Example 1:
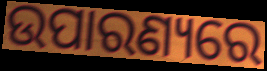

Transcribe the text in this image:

ଉପାରଣ୍ୟରେ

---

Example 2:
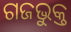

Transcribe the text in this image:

ଗଜଭୁକ୍ତ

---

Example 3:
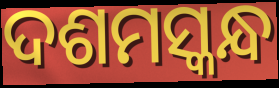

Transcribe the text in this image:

ଦଶମସ୍କନ୍ଧ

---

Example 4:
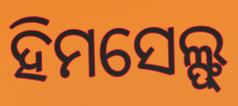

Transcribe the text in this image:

ହିମସେଲ୍ଫ୍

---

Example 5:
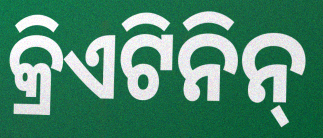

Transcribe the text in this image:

କ୍ରିଏଟିନିନ୍